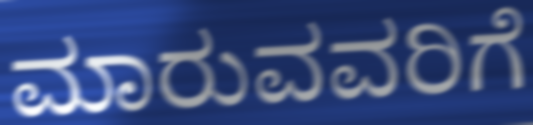
ಮಾರುವವರಿಗೆ